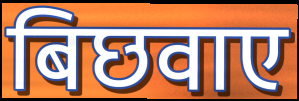
बिछवाए